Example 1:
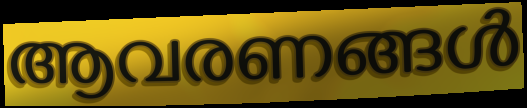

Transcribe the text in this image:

ആവരണങ്ങൾ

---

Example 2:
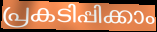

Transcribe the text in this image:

പ്രകടിപ്പിക്കാം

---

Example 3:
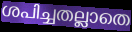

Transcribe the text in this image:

ശപിച്ചതല്ലാതെ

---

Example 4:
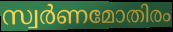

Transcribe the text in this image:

സ്വർണമോതിരം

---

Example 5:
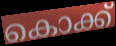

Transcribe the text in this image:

കൊക്ക്